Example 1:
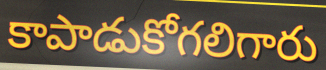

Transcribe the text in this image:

కాపాడుకోగలిగారు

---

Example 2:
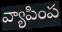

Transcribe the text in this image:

వ్యాపింప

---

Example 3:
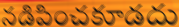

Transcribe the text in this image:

నడిపించకూడదు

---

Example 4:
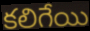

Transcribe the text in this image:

కలిగేయి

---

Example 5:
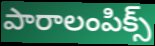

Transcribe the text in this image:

పారాలంపిక్స్